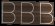
BBB